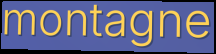
montagne